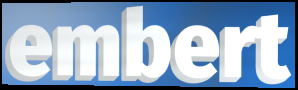
embert